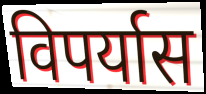
विपर्यास